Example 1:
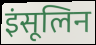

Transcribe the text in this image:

इंसूलिन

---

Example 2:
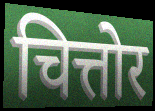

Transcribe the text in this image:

चित्तोर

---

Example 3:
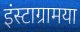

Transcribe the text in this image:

इंस्टाग्रामया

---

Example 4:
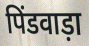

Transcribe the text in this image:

पिंडवाड़ा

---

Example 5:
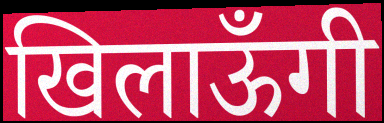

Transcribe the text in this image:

खिलाऊँगी